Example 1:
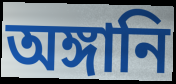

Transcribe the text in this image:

অঙ্গানি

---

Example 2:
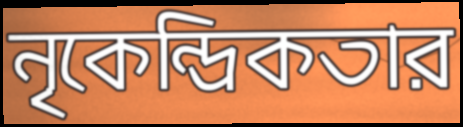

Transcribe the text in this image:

নৃকেন্দ্রিকতার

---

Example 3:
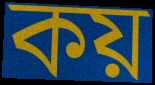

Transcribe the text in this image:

কয়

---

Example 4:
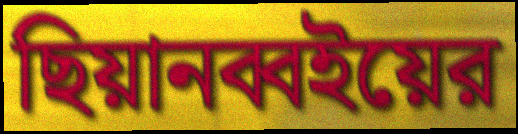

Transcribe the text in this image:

ছিয়ানব্বইয়ের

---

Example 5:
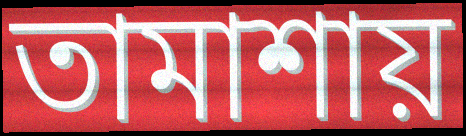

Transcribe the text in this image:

তামাশায়